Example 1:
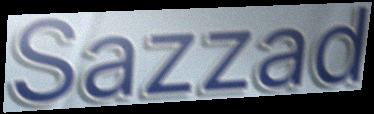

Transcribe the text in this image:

Sazzad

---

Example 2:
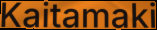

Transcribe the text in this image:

Kaitamaki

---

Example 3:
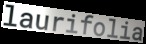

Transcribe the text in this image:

laurifolia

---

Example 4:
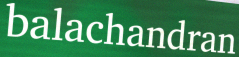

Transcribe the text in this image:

balachandran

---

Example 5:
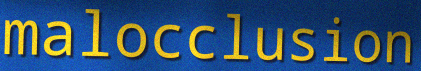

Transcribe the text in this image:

malocclusion